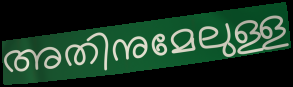
അതിനുമേലുള്ള